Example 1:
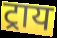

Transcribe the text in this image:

ट्राय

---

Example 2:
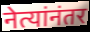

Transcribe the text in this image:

नेत्यांनंतर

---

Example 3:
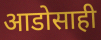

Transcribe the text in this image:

आडोसाही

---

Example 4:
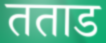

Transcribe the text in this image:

तताड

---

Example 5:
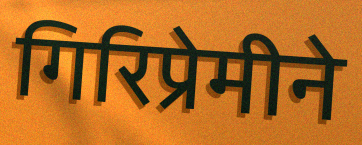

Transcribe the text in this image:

गिरिप्रेमीने